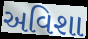
અવિશા